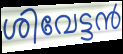
ശിവേട്ടൻ